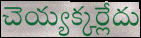
చెయ్యక్కర్లేదు